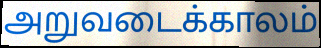
அறுவடைக்காலம்